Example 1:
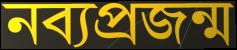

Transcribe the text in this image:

নব্যপ্রজন্ম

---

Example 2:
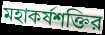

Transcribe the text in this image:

মহাকর্ষশক্তির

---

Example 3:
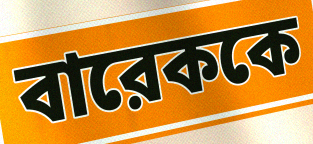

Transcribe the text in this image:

বারেককে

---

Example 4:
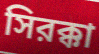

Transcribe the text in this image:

সিরক্কা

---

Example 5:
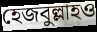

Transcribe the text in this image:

হেজবুল্লাহও